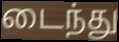
டைந்து